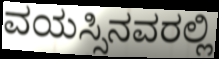
ವಯಸ್ಸಿನವರಲ್ಲಿ